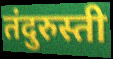
तंदुरुस्ती